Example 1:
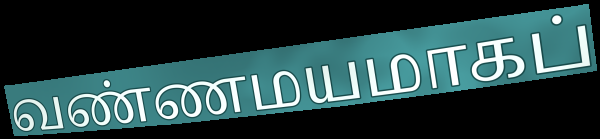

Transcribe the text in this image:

வண்ணமயமாகப்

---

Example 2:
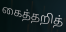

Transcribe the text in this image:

கைத்தறித்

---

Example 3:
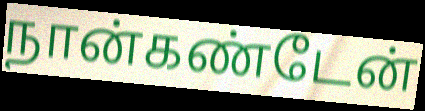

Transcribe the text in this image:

நான்கண்டேன்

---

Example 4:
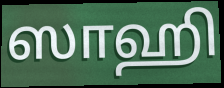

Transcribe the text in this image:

ஸாஹி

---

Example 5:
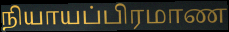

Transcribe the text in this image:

நியாயப்பிரமாண